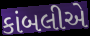
કાંબલીએ